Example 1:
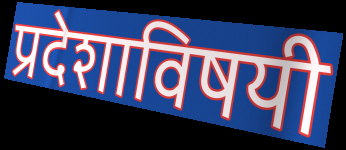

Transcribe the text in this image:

प्रदेशाविषयी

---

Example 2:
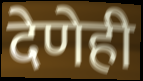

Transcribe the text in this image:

देणेही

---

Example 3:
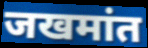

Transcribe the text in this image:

जखमांत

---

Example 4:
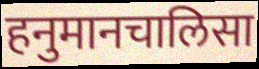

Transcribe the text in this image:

हनुमानचालिसा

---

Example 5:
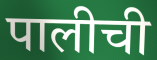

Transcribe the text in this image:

पालीची